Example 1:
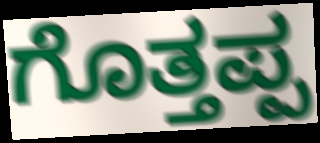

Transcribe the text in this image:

ಗೊತ್ತಪ್ಪ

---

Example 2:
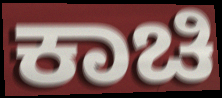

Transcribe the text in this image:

ಕಾಚಿ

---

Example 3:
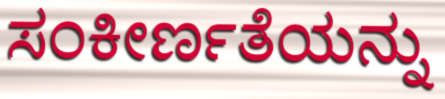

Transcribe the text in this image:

ಸಂಕೀರ್ಣತೆಯನ್ನು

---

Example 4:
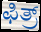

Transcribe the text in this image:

ಫಿತ್ರ್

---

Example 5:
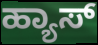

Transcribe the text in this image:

ಹ್ಯಾಸ್